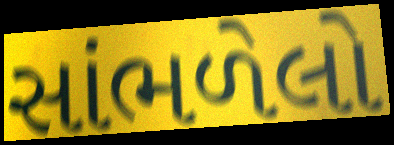
સાંભળેલો